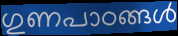
ഗുണപാഠങ്ങൾ